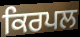
ਕਿਰਪਲ